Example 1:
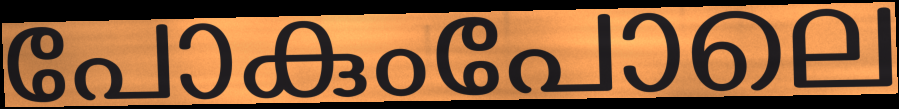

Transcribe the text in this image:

പോകുംപോലെ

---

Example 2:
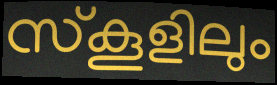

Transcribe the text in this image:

സ്കൂളിലും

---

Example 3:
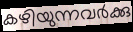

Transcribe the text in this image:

കഴിയുന്നവർക്കു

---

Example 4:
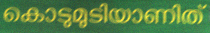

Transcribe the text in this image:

കൊടുമുടിയാണിത്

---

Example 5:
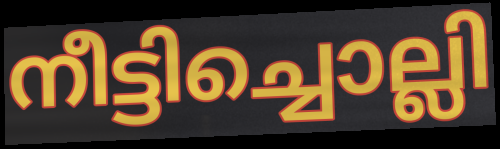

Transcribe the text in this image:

നീട്ടിച്ചൊല്ലി